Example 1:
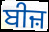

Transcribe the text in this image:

ਬੀਜ਼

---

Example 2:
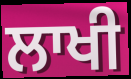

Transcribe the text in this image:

ਲਾਖੀ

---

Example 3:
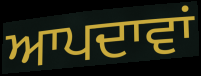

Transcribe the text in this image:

ਆਪਦਾਵਾਂ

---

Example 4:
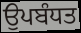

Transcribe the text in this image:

ਉਪਬੰਧਤ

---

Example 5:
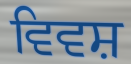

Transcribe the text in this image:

ਵਿਵਸ਼